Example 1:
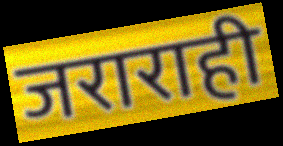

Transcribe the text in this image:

जराराही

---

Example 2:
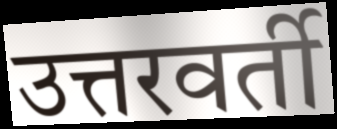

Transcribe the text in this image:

उत्तरवर्ती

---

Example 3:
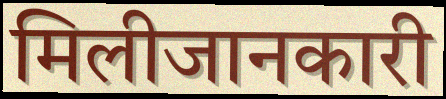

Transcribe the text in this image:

मिलीजानकारी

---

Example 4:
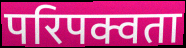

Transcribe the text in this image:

परिपक्वता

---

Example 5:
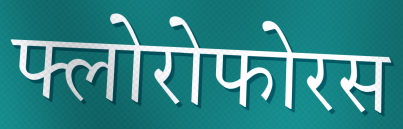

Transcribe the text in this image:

फ्लोरोफोरस